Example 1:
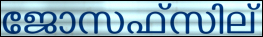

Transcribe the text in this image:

ജോസഫ്സില്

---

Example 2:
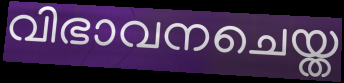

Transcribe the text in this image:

വിഭാവനചെയ്ത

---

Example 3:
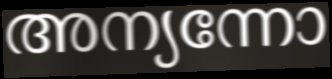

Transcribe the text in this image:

അന്യന്നോ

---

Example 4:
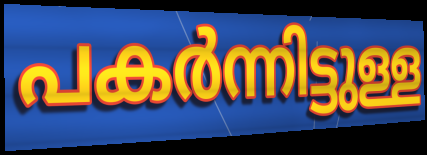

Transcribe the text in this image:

പകർന്നിട്ടുള്ള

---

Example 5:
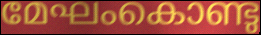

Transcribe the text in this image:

മേഘംകൊണ്ടു